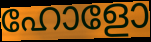
ഹോളോ